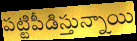
పట్టిపీడిస్తున్నాయి